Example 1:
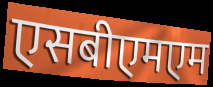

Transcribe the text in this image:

एसबीएमएम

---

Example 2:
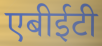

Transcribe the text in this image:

एबीईटी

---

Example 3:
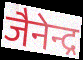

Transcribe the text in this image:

जैनेन्‍द्र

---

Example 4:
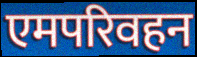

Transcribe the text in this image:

एमपरिवहन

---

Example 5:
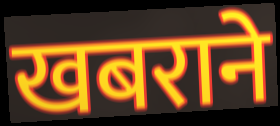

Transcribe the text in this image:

खबराने